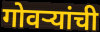
गोवऱ्यांची